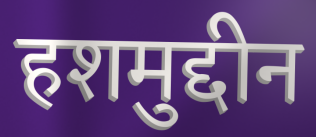
हशमुद्दीन